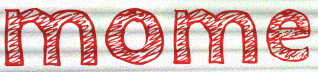
mome